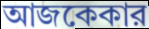
আজকেকার